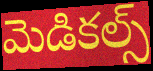
మెడికల్స్